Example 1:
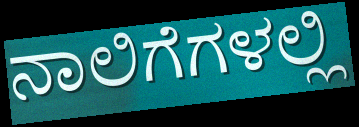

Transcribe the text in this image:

ನಾಲಿಗೆಗಳಲ್ಲಿ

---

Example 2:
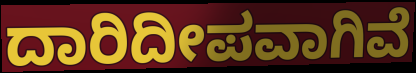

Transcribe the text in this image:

ದಾರಿದೀಪವಾಗಿವೆ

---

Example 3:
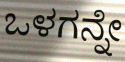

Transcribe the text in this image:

ಒಳಗನ್ನೇ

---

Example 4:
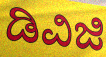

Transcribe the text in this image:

ಡಿವಿಜಿ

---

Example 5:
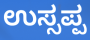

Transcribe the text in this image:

ಉಸ್ಸಪ್ಪ